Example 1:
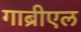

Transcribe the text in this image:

गाब्रीएल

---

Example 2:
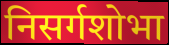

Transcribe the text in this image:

निसर्गशोभा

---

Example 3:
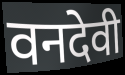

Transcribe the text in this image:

वनदेवी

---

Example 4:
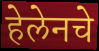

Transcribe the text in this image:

हेलेनचे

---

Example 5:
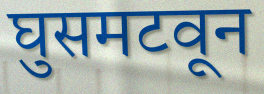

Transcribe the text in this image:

घुसमटवून